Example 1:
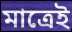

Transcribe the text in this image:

মাত্ৰেই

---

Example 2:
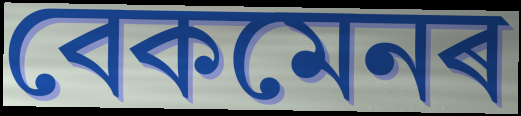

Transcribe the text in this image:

বেকমেনৰ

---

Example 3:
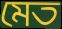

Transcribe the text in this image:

মেত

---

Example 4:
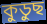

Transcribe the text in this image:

কুডুছ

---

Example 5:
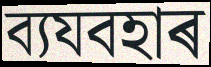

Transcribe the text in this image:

ব্যযবহাৰ